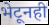
भेटूनही